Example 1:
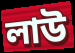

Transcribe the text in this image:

লাউ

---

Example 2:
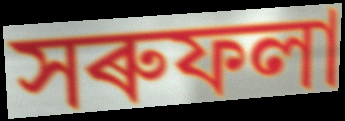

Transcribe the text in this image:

সৰুফলা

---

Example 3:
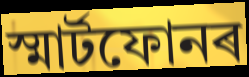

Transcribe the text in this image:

স্মাৰ্টফোনৰ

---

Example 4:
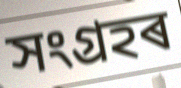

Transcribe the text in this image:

সংগ্ৰহৰ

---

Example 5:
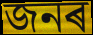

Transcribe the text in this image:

জনৰ